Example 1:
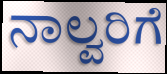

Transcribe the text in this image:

ನಾಲ್ವರಿಗೆ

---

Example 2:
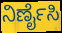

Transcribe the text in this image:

ನಿರ್ಣೈಸಿ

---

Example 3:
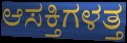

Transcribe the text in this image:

ಆಸಕ್ತಿಗಳತ್ತ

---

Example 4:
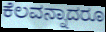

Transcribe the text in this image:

ಕೆಲವನ್ನಾದರೂ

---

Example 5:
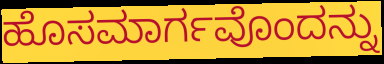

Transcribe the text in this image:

ಹೊಸಮಾರ್ಗವೊಂದನ್ನು